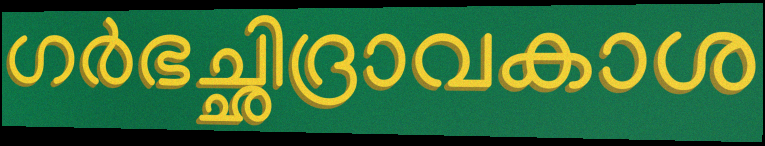
ഗർഭച്ഛിദ്രാവകാശ